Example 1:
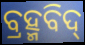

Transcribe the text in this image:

ବ୍ରହ୍ମବିଦ୍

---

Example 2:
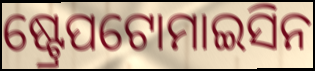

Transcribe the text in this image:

ଷ୍ଟ୍ରେପଟୋମାଇସିନ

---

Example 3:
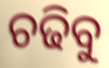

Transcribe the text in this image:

ଚଢିବୁ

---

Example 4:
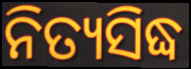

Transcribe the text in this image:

ନିତ୍ୟସିଦ୍ଧ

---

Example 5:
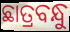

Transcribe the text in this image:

ଛାତ୍ରବନ୍ଧୁ